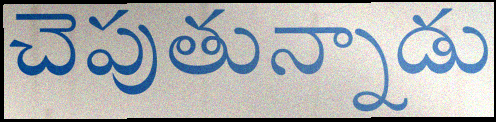
చెపుతున్నాడు